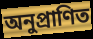
অনুপ্রাণিত